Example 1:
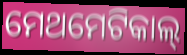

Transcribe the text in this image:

ମେଥମେଟିକାଲ୍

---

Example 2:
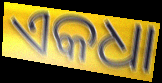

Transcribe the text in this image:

ଏକଧା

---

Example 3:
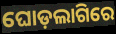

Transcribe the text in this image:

ଘୋଡ଼ଲାଗିରେ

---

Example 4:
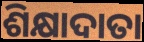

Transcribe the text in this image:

ଶିକ୍ଷାଦାତା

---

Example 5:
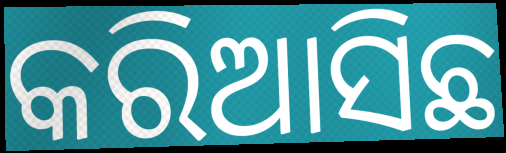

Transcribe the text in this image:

କରିଆସିଛ